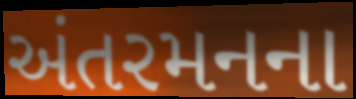
અંતરમનના